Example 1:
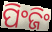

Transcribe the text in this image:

ପିଂଜିଂ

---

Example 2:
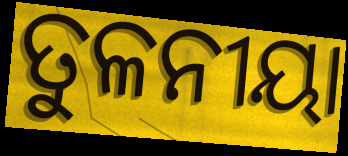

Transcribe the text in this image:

ତୁଳନୀୟା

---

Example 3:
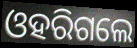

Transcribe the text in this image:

ଓହରିଗଲେ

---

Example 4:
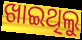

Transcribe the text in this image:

ଖାଇଥିଲୁ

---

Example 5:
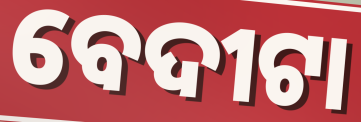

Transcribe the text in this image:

ବେଦୀଟା